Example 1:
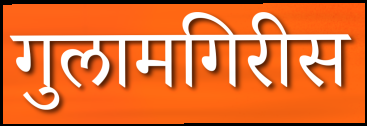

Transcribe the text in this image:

गुलामगिरीस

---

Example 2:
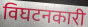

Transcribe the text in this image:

विघटनकारी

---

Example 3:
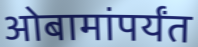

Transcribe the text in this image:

ओबामांपर्यंत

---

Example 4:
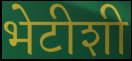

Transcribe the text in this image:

भेटीशी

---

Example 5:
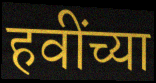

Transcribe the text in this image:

हवींच्या